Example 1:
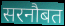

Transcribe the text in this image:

सरनौबत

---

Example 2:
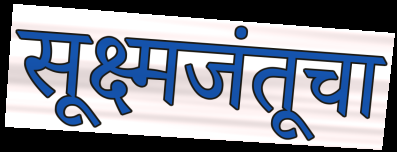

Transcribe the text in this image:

सूक्ष्मजंतूचा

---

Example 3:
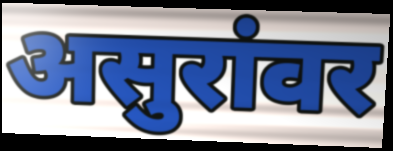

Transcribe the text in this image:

असुरांवर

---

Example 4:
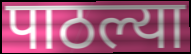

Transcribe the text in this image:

पाठल्या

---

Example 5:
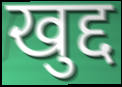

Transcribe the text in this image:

खुद्द